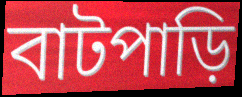
বাটপাড়ি